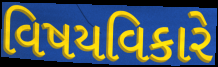
વિષયવિકારે